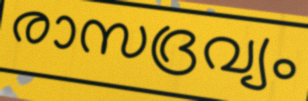
രാസദ്രവ്യം